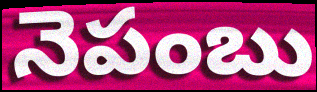
నెపంబు